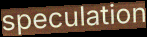
speculation